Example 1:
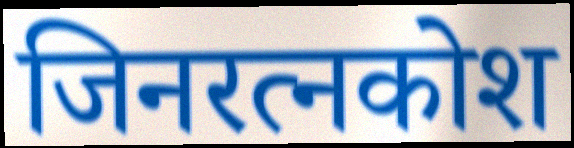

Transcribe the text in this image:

जिनरत्नकोश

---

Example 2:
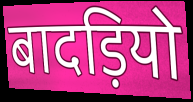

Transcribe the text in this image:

बादड़ियो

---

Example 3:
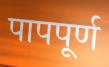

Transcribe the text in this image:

पापपूर्ण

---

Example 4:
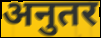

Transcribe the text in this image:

अनुतर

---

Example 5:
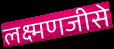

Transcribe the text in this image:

लक्ष्मणजीसे